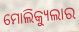
ମୋଲିକ୍ୟୁଲାର